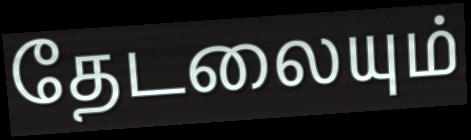
தேடலையும்